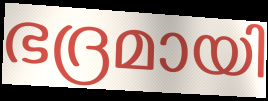
ഭദ്രമായി